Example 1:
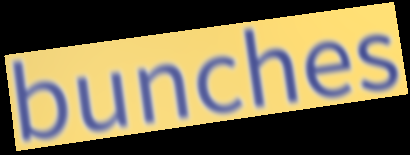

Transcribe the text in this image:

bunches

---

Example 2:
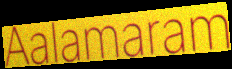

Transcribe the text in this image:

Aalamaram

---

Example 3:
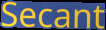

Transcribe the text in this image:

Secant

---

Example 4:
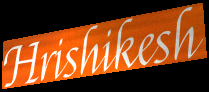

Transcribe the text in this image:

Hrishikesh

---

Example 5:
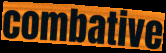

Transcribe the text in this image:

combative